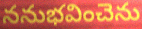
ననుభవించెను